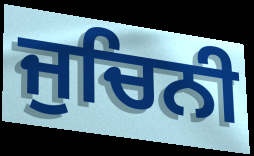
ਜੁਚਿਨੀ